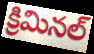
క్రిమినల్